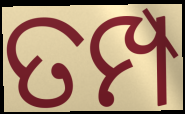
ତମ୍ପ